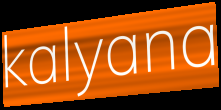
kalyana